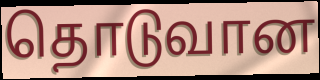
தொடுவான